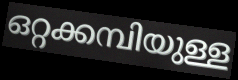
ഒറ്റക്കമ്പിയുള്ള